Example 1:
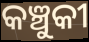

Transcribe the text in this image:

କଞ୍ଚୁକୀ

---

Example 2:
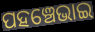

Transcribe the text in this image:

ପହଞ୍ଚେଭାଇ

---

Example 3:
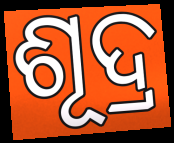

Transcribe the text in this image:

ଶୂଦ୍ର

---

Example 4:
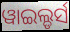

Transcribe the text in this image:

ୱାଇଲ୍ଡର୍ସ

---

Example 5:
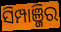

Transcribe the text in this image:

ସିମ୍ପାଞ୍ଜିର